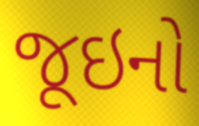
જૂઇનો